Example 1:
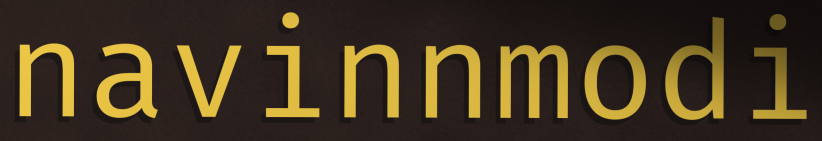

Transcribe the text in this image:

navinnmodi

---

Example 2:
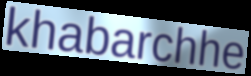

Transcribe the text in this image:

khabarchhe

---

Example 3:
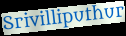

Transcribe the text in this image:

Srivilliputhur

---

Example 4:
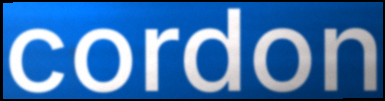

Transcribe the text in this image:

cordon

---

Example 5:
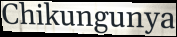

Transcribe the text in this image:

Chikungunya